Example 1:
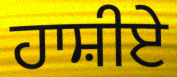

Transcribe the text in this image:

ਹਾਸ਼ੀਏ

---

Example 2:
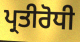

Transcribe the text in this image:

ਪ੍ਰਤੀਰੋਧੀ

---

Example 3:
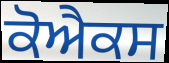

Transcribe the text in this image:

ਕੋਐਕਸ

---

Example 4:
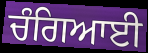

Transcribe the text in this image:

ਚੰਗਿਆਈ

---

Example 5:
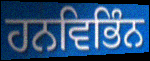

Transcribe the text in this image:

ਹਨਵਿਭਿੰਨ